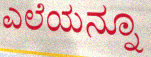
ಎಲೆಯನ್ನೂ